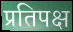
प्रतिपक्ष